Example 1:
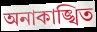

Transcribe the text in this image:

অনাকাঙ্খিত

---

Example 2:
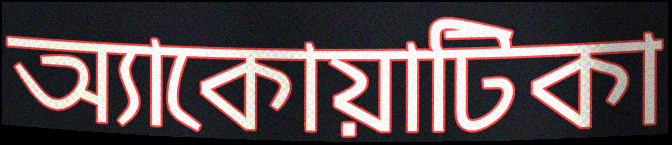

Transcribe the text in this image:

অ্যাকোয়াটিকা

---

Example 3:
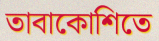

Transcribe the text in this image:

তাবাকোশিতে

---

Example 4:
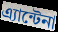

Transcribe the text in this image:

এ্যান্টেনা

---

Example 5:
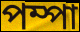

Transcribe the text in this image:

পম্পা